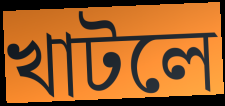
খাটলে